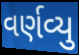
વર્ણવ્યુ